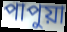
পাপুয়া